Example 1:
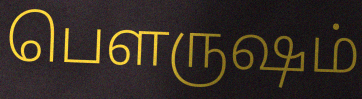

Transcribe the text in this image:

பௌருஷம்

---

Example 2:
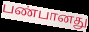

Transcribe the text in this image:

பண்பானது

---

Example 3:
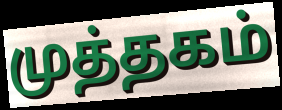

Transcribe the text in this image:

முத்தகம்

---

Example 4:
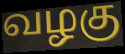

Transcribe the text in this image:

வழகு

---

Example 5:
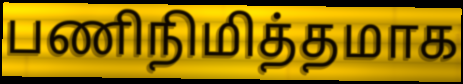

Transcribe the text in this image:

பணிநிமித்தமாக